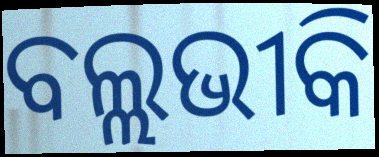
ବଲ୍ଲଭୀକି